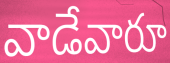
వాడేవారూ